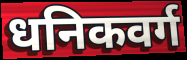
धनिकवर्ग